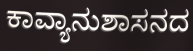
ಕಾವ್ಯಾನುಶಾಸನದ